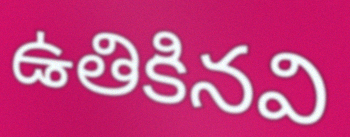
ఉతికినవి